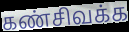
கண்சிவக்க